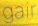
gair